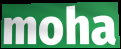
moha